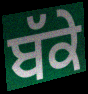
ਬੱਕੇ